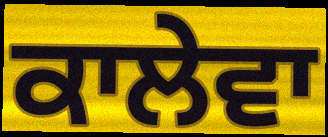
ਕਾਲੇਵਾ